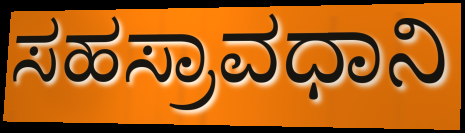
ಸಹಸ್ರಾವಧಾನಿ